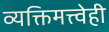
व्यक्तिमत्त्वेही